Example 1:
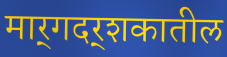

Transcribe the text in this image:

मार्गदर्शकातील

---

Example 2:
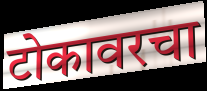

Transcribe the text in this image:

टोकावरचा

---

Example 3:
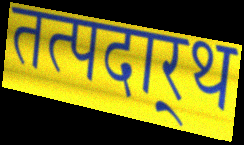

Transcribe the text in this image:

तत्पदार्थ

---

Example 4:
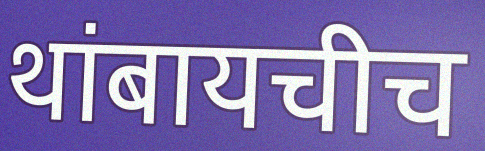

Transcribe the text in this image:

थांबायचीच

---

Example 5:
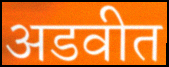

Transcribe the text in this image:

अडवीत